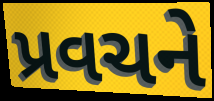
પ્રવચને